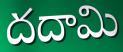
దదామి